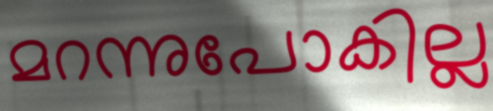
മറന്നുപോകില്ല